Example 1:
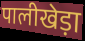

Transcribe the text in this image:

पालीखेड़ा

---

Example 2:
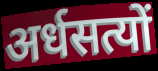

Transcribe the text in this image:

अर्धसत्यों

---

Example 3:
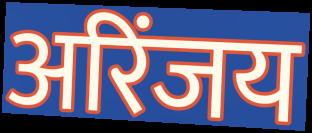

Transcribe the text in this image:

अरिंजय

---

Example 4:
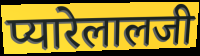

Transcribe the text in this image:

प्यारेलालजी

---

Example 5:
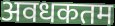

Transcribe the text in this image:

अवधकतम